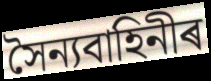
সৈন্যবাহিনীৰ